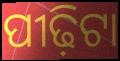
ପୀଢ଼ିଟା